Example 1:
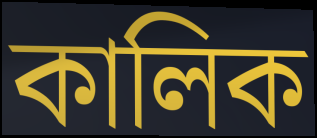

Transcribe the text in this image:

কালিক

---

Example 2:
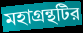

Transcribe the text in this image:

মহাগ্রন্থটির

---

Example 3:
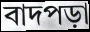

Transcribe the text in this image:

বাদপড়া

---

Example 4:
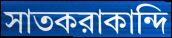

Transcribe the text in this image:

সাতকরাকান্দি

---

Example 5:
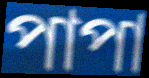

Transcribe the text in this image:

পাপা